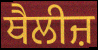
ਥੈਲੀਜ਼